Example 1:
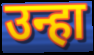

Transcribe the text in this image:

उन्हा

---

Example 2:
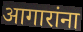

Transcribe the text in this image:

आगारांना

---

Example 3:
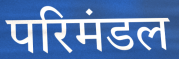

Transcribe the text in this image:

परिमंडल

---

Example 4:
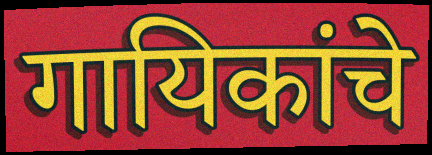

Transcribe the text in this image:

गायिकांचे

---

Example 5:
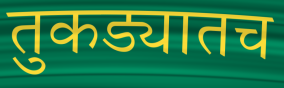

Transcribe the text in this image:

तुकड्यातच